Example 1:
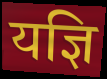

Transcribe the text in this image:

यज्ञि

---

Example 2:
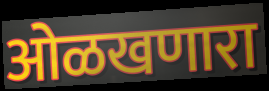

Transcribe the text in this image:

ओळखणारा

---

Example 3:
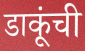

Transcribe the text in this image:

डाकूंची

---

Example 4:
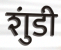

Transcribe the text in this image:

शुंडी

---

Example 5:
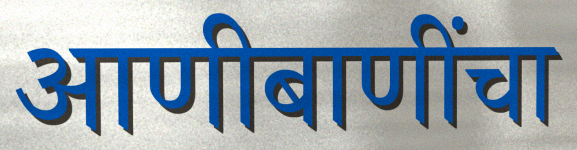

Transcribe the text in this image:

आणीबाणींचा